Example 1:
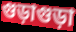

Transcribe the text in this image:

গুড়াগুড়া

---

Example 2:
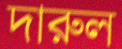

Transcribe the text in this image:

দারুল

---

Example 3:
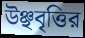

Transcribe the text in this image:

উঞ্ছবৃত্তির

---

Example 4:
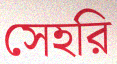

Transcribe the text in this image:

সেহরি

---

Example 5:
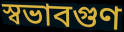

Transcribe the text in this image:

স্বভাবগুণ